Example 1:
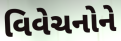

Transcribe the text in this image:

વિવેચનોને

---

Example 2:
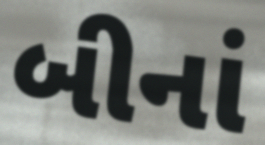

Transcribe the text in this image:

બીનાં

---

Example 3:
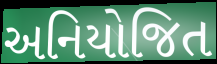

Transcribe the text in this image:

અનિયોજિત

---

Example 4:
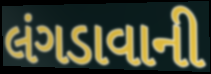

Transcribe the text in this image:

લંગડાવાની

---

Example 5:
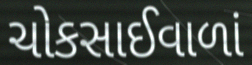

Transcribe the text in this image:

ચોકસાઈવાળાં